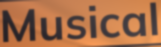
Musical